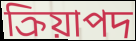
ক্রিয়াপদ